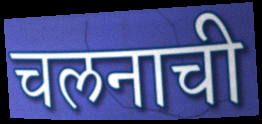
चलनाची